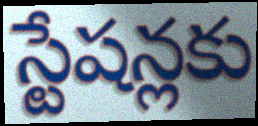
స్టేషన్లకు